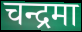
चन्द्रमा